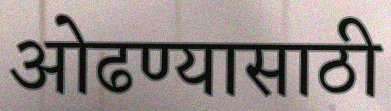
ओढण्यासाठी